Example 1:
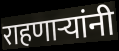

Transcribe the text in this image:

राहणार्‍यांनी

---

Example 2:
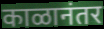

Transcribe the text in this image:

काळानंतर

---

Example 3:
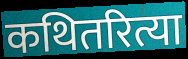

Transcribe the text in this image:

कथितरित्या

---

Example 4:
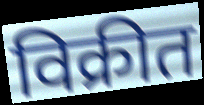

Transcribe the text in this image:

विक्रीत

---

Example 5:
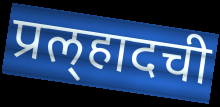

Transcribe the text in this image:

प्रल्हादची